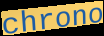
chrono